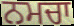
ਨਮਚਾ